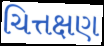
ચિત્તક્ષણ